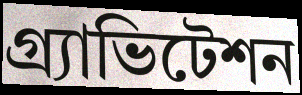
গ্র্যাভিটেশন